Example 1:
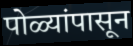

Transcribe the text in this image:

पोळ्यांपासून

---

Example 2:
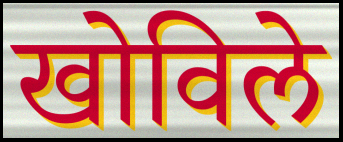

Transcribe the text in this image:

खोविले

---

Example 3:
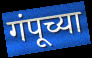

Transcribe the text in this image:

गंपूच्या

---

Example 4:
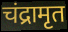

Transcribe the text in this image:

चंद्रामृत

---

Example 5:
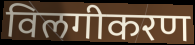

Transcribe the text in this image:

विलगीकरण